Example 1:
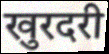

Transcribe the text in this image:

खुरदरी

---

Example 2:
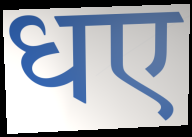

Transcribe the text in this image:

धए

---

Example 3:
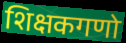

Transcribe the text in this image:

शिक्षकगणो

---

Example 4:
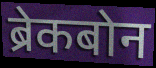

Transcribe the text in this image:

ब्रेकबोन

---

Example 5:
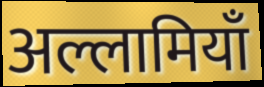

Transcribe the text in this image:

अल्लामियाँ